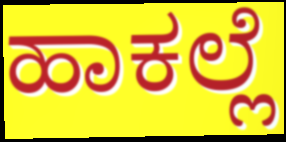
ಹಾಕಲ್ಲೆ